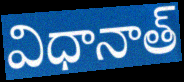
విధానాత్